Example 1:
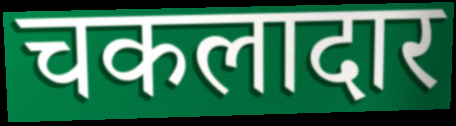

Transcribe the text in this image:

चकलादार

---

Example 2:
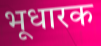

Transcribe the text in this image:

भूधारक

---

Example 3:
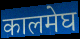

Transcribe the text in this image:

कालमेघ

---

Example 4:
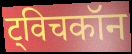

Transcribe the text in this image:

ट्विचकॉन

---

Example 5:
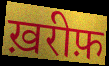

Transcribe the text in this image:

ख़रीफ़